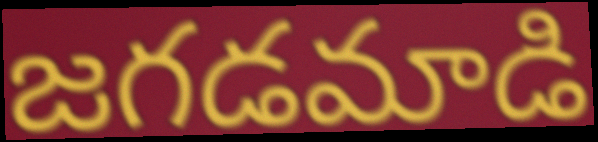
జగడమాడి